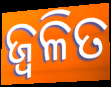
ଜ୍ୱଳିତ